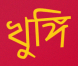
খুঙ্গি